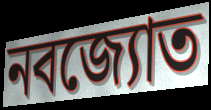
নবজ্যোত